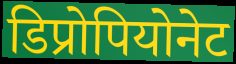
डिप्रोपियोनेट